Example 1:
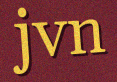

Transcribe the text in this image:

jvn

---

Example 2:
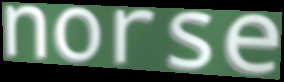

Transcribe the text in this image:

norse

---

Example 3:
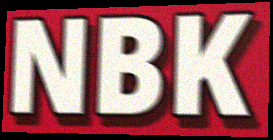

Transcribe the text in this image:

NBK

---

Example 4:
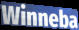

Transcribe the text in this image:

Winneba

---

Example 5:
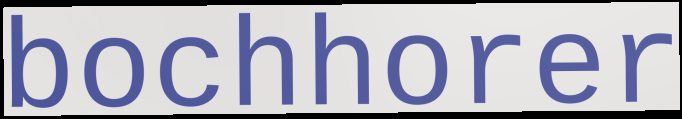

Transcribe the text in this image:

bochhorer